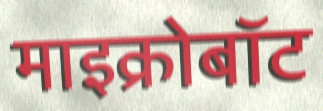
माइक्रोबॉट